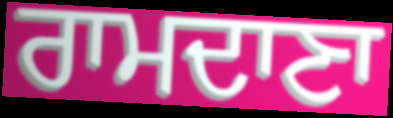
ਰਾਮਦਾਣਾ